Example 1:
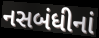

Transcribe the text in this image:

નસબંધીનાં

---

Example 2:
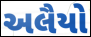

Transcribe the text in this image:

અલૈયો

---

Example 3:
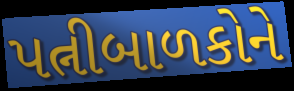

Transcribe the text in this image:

પત્નીબાળકોને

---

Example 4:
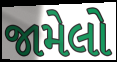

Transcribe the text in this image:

જામેલો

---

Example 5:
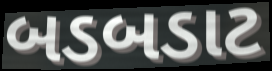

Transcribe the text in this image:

બડબડાટ